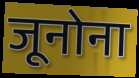
जूनोना